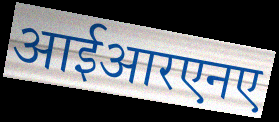
आईआरएनए